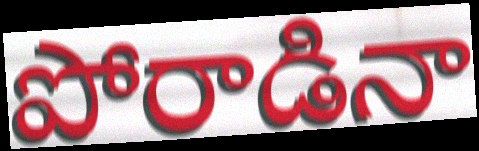
పోరాడినా